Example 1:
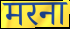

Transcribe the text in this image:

मरना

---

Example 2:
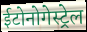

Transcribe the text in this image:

ईटोनोगेस्ट्रेल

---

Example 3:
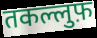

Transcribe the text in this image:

तकल्लुफ़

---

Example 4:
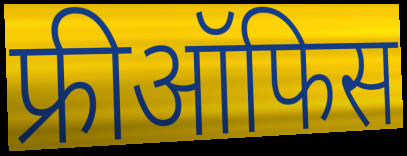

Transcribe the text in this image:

फ्रीऑफिस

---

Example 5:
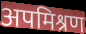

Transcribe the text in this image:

अपमिश्रण